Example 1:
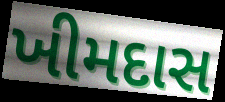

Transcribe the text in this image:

ખીમદાસ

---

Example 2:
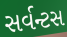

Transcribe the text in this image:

સર્વન્ટસ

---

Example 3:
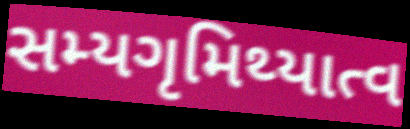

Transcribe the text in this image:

સમ્યગૃમિથ્યાત્વ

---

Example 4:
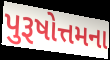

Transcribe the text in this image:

પુરૂષોત્તમના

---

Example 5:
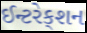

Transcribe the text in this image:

ઈન્ટરેક્‌શન